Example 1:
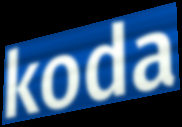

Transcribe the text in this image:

koda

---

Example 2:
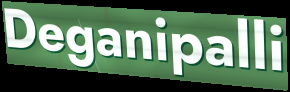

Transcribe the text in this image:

Deganipalli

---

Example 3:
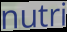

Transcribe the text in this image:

nutri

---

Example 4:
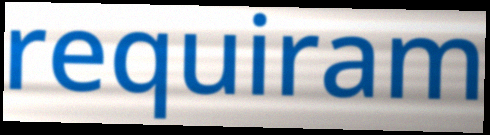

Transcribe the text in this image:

requiram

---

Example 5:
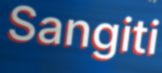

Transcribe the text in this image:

Sangiti